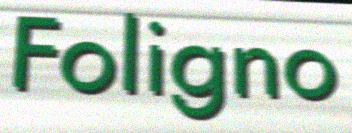
Foligno